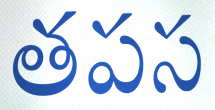
తపస